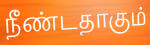
நீண்டதாகும்